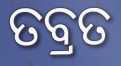
ତବ୍ରତ